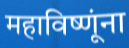
महाविष्णूंना